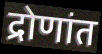
द्रोणांत